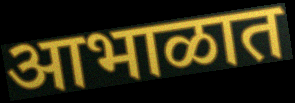
आभाळात